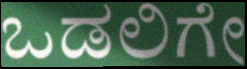
ಒಡಲಿಗೇ